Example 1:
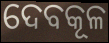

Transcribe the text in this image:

ଦେବକୂଳ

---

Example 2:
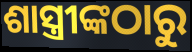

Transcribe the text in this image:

ଶାସ୍ତ୍ରୀଙ୍କଠାରୁ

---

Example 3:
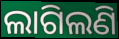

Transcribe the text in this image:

ଲାଗିଲଣି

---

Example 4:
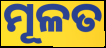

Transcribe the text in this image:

ମୂଳତ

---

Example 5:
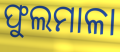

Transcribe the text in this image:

ଫୁଲମାଳା